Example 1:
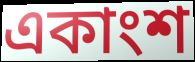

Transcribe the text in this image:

একাংশ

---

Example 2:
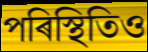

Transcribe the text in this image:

পৰিস্থিতিও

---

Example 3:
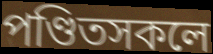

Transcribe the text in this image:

পণ্ডিতসকলে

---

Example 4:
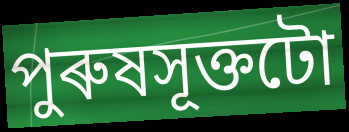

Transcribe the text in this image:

পুৰুষসূক্তটো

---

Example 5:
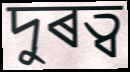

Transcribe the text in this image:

দুৰত্ব